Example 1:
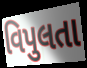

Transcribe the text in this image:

વિપુલતા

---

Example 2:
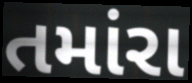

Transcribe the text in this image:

તમાંરા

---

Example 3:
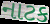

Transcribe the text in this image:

નાટક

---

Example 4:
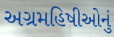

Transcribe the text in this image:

અગ્રમહિષીઓનું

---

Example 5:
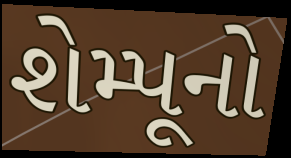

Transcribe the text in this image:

શેમ્પૂનો